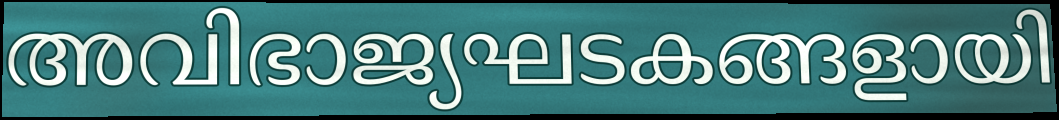
അവിഭാജ്യഘടകങ്ങളായി